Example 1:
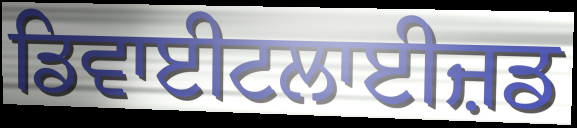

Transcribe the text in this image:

ਡਿਵਾਈਟਲਾਈਜ਼ਡ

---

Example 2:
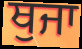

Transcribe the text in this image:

ਥੁਜਾ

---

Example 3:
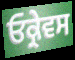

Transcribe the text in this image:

ਓਕ੍ਰੇਵਸ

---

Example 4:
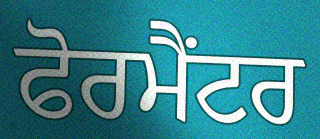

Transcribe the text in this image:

ਫੋਰਮੈਂਟਰ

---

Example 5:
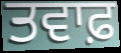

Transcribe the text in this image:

ਤਵਾਫ਼